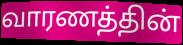
வாரணத்தின்